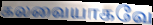
கலவையாகவே